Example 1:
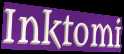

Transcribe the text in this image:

Inktomi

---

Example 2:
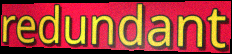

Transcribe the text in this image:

redundant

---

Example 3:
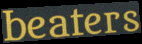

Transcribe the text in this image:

beaters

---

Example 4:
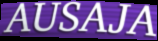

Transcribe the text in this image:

AUSAJA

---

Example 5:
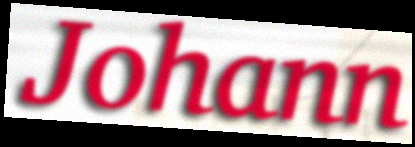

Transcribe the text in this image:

Johann